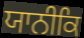
ਯਾਨੀਕਿ